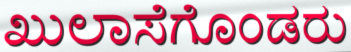
ಖುಲಾಸೆಗೊಂಡರು